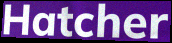
Hatcher